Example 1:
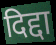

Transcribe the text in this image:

दिद्दा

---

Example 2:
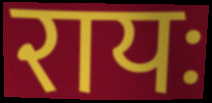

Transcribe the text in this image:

रायः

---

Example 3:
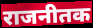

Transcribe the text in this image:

राजनीतक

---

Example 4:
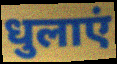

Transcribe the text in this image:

धुलाएं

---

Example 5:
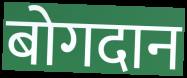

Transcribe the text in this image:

बोगदान